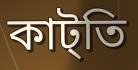
কাট্তি